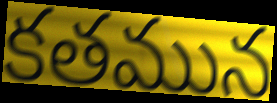
కతమున